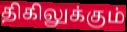
திகிலுக்கும்